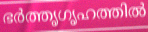
ഭർത്തൃഗൃഹത്തിൽ